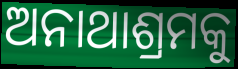
ଅନାଥାଶ୍ରମକୁ